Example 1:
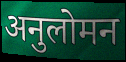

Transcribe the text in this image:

अनुलोमन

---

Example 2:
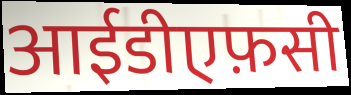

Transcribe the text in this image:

आईडीएफ़सी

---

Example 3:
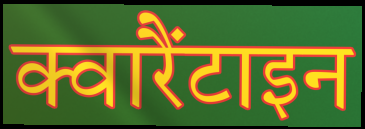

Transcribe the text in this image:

क्वारैंटाइन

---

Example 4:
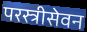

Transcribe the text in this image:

परस्त्रीसेवन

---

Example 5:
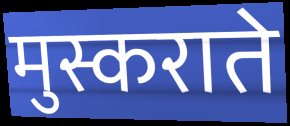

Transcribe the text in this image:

मुस्‍कराते